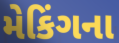
મેકિંગના